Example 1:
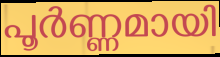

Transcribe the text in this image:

പൂർണ്ണമായി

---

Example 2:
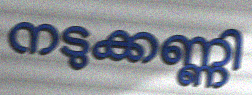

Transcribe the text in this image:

നടുക്കണ്ണി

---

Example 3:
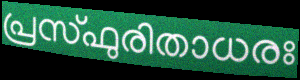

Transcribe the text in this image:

പ്രസ്ഫുരിതാധരഃ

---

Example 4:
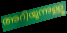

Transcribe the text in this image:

അറിയുന്നുള്ളൂ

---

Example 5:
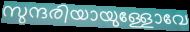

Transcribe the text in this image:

സുന്ദരിയായുള്ളോവേ